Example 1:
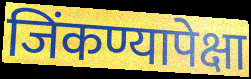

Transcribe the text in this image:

जिंकण्यापेक्षा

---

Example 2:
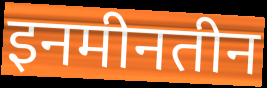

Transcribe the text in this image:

इनमीनतीन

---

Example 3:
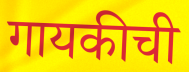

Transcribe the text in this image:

गायकीची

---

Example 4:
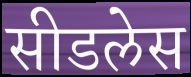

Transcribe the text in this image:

सीडलेस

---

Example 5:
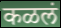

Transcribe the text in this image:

कळलं